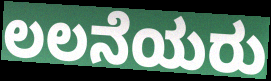
ಲಲನೆಯರು